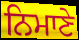
ਨਿਮਾਣੇ